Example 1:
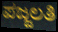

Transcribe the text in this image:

ಪಜ್ಜಲತಿ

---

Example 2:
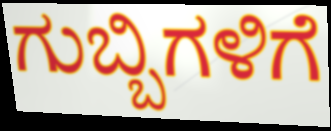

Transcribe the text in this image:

ಗುಬ್ಬಿಗಳಿಗೆ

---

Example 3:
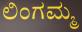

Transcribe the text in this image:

ಲಿಂಗಮ್ಮ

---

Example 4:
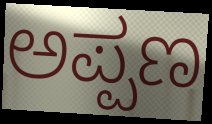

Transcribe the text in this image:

ಅಪ್ಪಣ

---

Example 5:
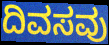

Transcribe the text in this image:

ದಿವಸವು